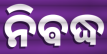
ନିଵଦ୍ଧ